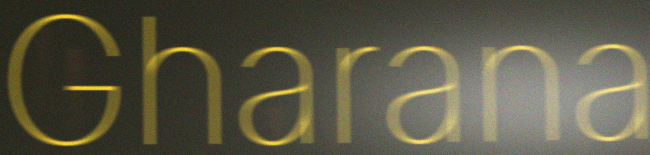
Gharana